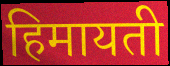
हिमायती